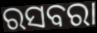
ରସବରା